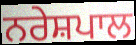
ਨਰੇਸ਼ਪਾਲ